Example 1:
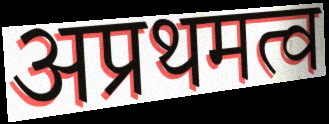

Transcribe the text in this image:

अप्रथमत्व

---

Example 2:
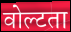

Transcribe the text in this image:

वोल्टता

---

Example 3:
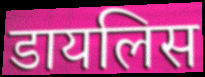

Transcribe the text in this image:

डायलिस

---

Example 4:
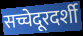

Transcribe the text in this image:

सच्चेदूरदर्शी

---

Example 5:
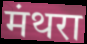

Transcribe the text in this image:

मंथरा